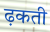
ढ़कती